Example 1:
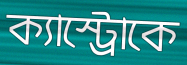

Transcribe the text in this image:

ক্যাস্ট্রোকে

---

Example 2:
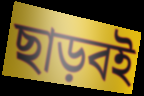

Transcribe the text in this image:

ছাড়বই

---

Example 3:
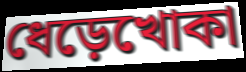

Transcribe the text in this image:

ধেড়েখোকা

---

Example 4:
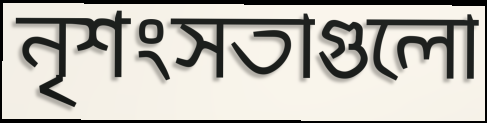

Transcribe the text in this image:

নৃশংসতাগুলো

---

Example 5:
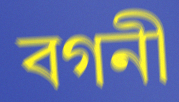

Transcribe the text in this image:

বগনী